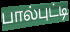
பால்புட்டி